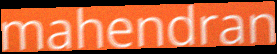
mahendran